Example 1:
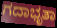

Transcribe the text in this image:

ಗದಾಭೃತಾ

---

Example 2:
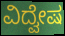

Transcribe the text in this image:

ವಿದ್ವೇಷ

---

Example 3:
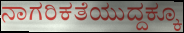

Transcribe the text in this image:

ನಾಗರಿಕತೆಯುದ್ದಕ್ಕೂ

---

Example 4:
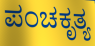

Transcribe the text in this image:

ಪಂಚಕೃತ್ಯ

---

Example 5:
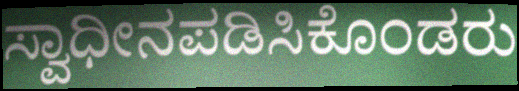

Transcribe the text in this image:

ಸ್ವಾಧೀನಪಡಿಸಿಕೊಂಡರು